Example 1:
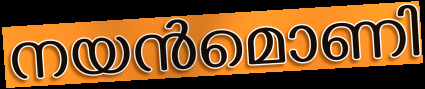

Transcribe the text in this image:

നയൻമൊണി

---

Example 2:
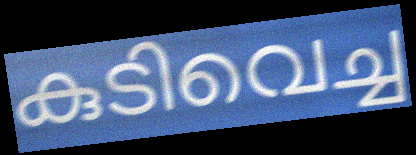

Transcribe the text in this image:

കുടിവെച്ച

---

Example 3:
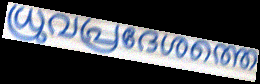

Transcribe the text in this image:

ധ്രുവപ്രദേശത്തെ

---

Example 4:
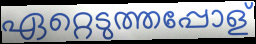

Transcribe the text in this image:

ഏറ്റെടുത്തപ്പോള്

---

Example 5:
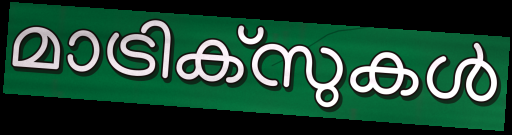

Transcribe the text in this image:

മാട്രിക്സുകൾ